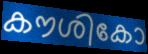
കൗശികോ